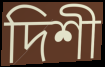
দিশী